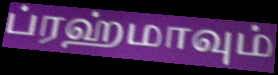
ப்ரஹ்மாவும்